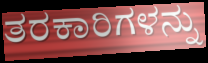
ತರಕಾರಿಗಳನ್ನು